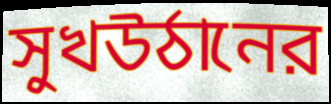
সুখউঠানের